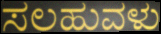
ಸಲಹುವಳು